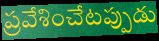
ప్రవేశించేటప్పుడు